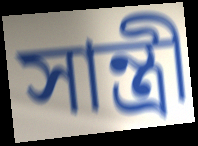
সান্ত্রী